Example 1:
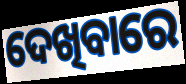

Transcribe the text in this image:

ଦେଖିବାରେ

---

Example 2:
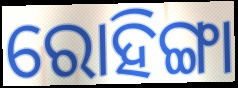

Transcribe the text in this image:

ରୋହିଙ୍ଗା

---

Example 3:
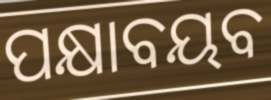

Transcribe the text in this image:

ପକ୍ଷାବୟବ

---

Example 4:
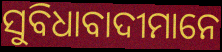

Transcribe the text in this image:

ସୁବିଧାବାଦୀମାନେ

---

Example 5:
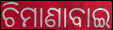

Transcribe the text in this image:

ଚିମାଣାବାଇ